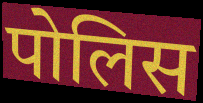
पोलिस